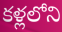
కళ్లలోని